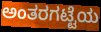
ಅಂತರಗಟ್ಟೆಯ